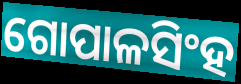
ଗୋପାଳସିଂହ